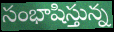
సంభాషిస్తున్న